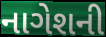
નાગેશની